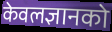
केवलज्ञानको